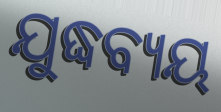
ଯୁଦ୍ଧବ୍ୟୟ